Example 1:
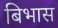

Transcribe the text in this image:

बिभास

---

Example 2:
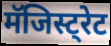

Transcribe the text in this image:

मॅजिस्ट्रेट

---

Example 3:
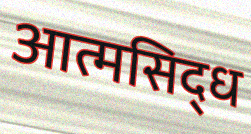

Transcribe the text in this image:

आत्मसिद्ध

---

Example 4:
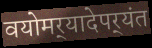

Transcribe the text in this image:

वयोमर्यादेपर्यंत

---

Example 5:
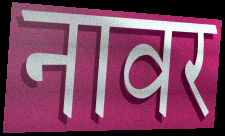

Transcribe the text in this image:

नावर